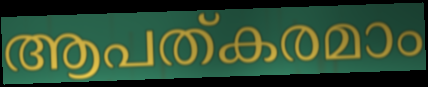
ആപത്കരമാം